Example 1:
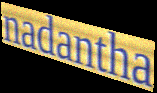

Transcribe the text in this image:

nadantha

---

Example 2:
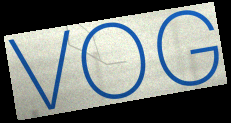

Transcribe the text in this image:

VOG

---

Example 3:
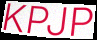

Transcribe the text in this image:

KPJP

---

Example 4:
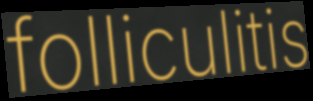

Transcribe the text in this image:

folliculitis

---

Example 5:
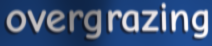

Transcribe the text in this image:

overgrazing